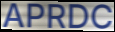
APRDC